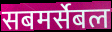
सबमर्सेबल